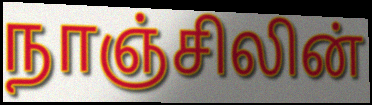
நாஞ்சிலின்